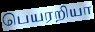
பெயரறியா